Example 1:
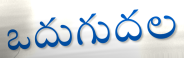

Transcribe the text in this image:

ఒదుగుదల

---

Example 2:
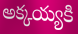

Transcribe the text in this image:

అక్కయ్యకి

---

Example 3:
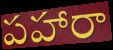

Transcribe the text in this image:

పహారా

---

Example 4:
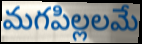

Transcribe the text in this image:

మగపిల్లలమే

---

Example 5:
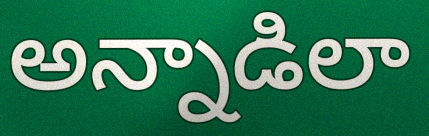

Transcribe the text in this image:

అన్నాడిలా